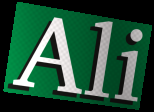
Ali